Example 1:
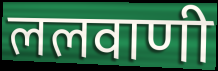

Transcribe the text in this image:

ललवाणी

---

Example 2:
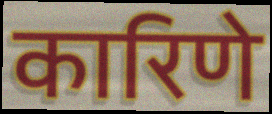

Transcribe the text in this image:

कारिणे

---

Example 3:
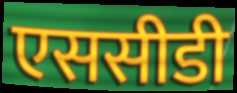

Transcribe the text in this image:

एससीडी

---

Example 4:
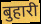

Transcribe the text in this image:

बुहारी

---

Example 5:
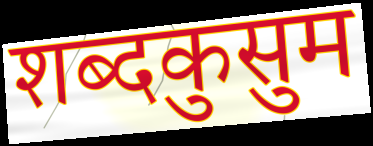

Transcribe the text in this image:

शब्दकुसुम